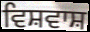
ਵਿਸ਼ਵਾਸ਼